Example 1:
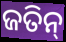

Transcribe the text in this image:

ଜତିନ୍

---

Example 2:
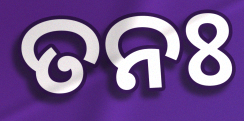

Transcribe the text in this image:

ତନଃ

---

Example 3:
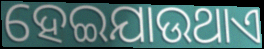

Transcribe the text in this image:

ହେଇଯାଉଥାଏ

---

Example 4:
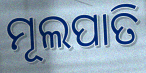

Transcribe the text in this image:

ମୂଲପାତି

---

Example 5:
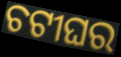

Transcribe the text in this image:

ଚଟୀଘର